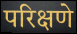
परिक्षणे